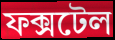
ফক্সটেল